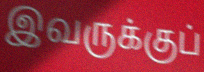
இவருக்குப்